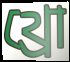
থ্রো